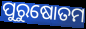
ପୁରୁଷୋତମ